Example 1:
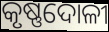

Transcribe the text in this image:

କୃଷ୍ଣଦୋଳୀ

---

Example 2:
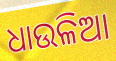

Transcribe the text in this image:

ଧାଉଳିଆ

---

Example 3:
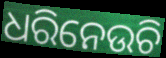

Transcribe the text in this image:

ଧରିନେଉଚି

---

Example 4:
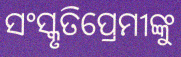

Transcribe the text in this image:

ସଂସ୍କୃତିପ୍ରେମୀଙ୍କୁ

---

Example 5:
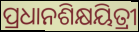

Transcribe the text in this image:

ପ୍ରଧାନଶିକ୍ଷୟିତ୍ରୀ